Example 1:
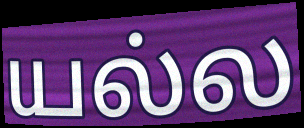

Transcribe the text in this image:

யல்ல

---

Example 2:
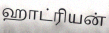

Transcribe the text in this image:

ஹாட்ரியன்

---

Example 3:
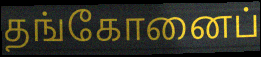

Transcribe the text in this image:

தங்கோனைப்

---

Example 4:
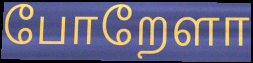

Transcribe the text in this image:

போறேளா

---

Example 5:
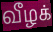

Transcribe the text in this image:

வீழக்